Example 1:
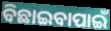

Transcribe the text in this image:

ବିଛାଇବାପାଇଁ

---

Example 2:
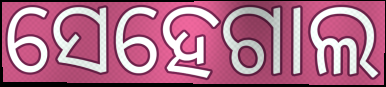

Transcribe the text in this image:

ସେହେଗାଲ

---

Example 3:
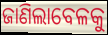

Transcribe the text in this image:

ଜାଣିଲାବେଳକୁ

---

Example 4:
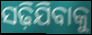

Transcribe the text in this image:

ସଢ଼ିଯିବାକୁ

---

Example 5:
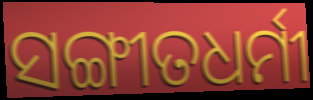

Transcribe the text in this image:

ସଙ୍ଗୀତଧର୍ମୀ